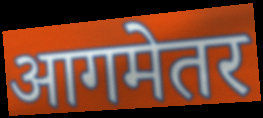
आगमेतर